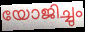
യോജിച്ചും